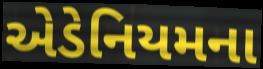
એડેનિયમના